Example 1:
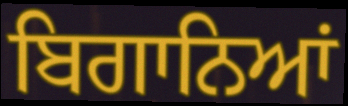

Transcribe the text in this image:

ਬਿਗਾਨਿਆਂ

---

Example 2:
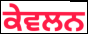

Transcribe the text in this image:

ਕੇਵਲਨ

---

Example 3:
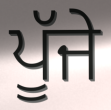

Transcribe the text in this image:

ਪੂੱਜੇ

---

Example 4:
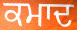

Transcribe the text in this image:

ਕਮਾਦ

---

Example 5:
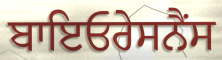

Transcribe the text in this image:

ਬਾਇਓਰੇਸਨੈਂਸ